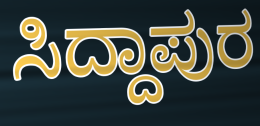
ಸಿದ್ದಾಪುರ